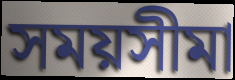
সময়সীমা